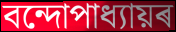
বন্দোপাধ্যায়ৰ